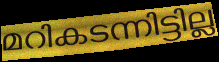
മറികടന്നിട്ടില്ല